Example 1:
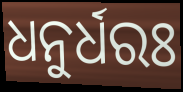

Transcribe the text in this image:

ଧନୁର୍ଧରଃ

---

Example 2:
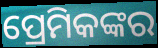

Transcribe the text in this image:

ପ୍ରେମିକଙ୍କର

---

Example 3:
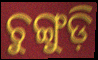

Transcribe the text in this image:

ଚୁଙ୍ଗୁଡ଼ି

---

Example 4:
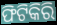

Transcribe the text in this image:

ଫିଟିକିରି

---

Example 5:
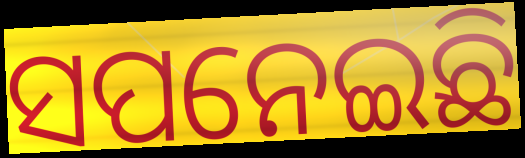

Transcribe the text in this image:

ସପନେଇଛି